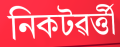
নিকটৱৰ্ত্তী